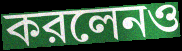
করলেনও